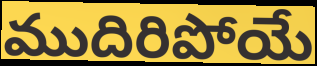
ముదిరిపోయే